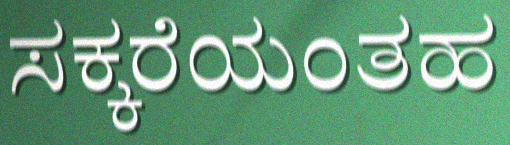
ಸಕ್ಕರೆಯಂತಹ